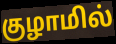
குழாமில்